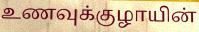
உணவுக்குழாயின்